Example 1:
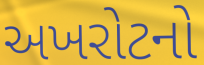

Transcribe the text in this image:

અખરોટનો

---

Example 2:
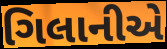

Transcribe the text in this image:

ગિલાનીએ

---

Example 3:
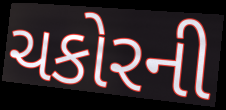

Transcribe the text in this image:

ચકોરની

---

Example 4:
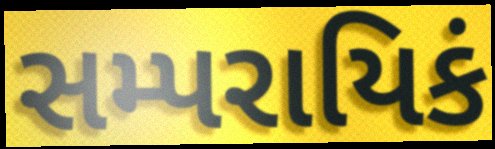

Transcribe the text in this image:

સમ્પરાયિકં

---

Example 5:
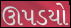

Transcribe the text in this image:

ઊપડયો